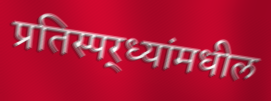
प्रतिस्पर्ध्यांमधील